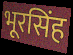
भूरसिंह